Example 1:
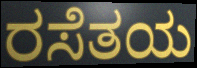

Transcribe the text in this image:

ರಸೆತಯ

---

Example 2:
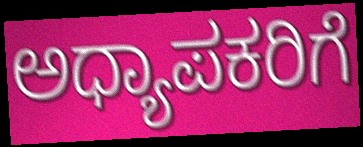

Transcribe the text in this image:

ಅಧ್ಯಾಪಕರಿಗೆ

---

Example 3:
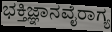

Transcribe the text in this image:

ಭಕ್ತಿಜ್ಞಾನವೈರಾಗ್ಯ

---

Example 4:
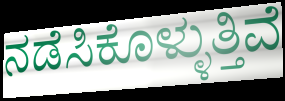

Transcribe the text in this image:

ನಡೆಸಿಕೊಳ್ಳುತ್ತಿವೆ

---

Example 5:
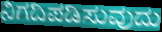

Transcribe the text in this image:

ನಿಗದಿಪಡಿಸುವುದು